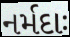
નર્મદાઃ